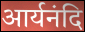
आर्यनंदि